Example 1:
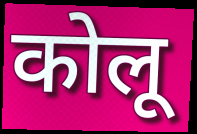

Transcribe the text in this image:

कोलू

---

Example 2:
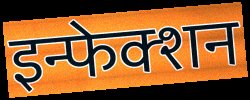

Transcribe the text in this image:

इन्‍फेक्‍शन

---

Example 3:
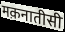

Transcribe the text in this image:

मक़नातीसी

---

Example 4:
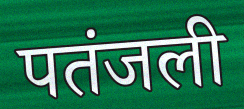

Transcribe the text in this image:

पतंजली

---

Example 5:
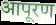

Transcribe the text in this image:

आपूरण